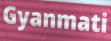
Gyanmati